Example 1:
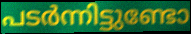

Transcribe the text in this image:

പടർന്നിട്ടുണ്ടോ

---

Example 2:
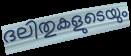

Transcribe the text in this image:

ദലിതുകളുടെയും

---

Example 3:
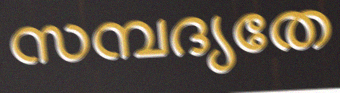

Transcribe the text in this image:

സമ്പദ്യതേ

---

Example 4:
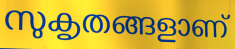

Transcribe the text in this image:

സുകൃതങ്ങളാണ്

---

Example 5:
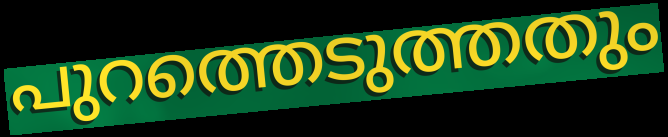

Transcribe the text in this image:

പുറത്തെടുത്തതും